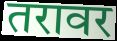
तरावर